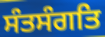
ਸੰਤਸੰਗਤਿ